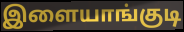
இளையாங்குடி